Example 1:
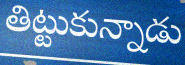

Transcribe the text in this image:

తిట్టుకున్నాడు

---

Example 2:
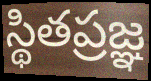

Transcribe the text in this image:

స్థితప్రజ్ఞ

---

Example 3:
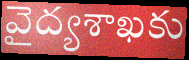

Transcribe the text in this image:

వైద్యశాఖకు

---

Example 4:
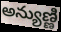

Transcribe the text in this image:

అన్యుణ్ణి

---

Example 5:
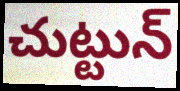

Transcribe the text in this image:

చుట్టున్